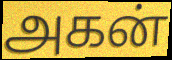
அகன்